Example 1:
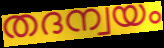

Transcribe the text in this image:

തദന്വയം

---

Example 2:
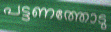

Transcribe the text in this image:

പട്ടണത്തോടു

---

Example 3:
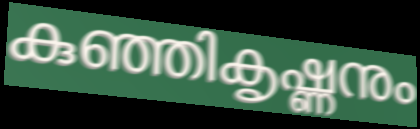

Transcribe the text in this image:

കുഞ്ഞികൃഷ്ണനും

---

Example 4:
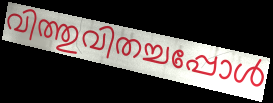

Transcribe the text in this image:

വിത്തുവിതച്ചപ്പോൾ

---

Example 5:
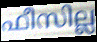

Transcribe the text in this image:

ഫീസില്ല